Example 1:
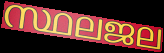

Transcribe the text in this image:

സ്ഥലജല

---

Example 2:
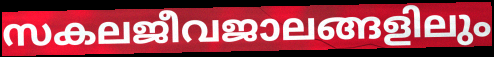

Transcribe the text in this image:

സകലജീവജാലങ്ങളിലും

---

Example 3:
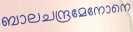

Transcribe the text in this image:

ബാലചന്ദ്രമേനോനെ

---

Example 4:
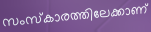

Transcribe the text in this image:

സംസ്കാരത്തിലേക്കാണ്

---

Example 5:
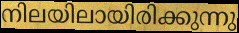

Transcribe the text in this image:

നിലയിലായിരിക്കുന്നു